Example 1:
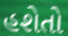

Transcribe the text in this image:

હશેતો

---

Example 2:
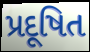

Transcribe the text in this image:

પ્રદૂષિત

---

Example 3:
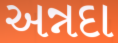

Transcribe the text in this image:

અન્નદા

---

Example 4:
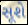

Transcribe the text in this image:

સૂશે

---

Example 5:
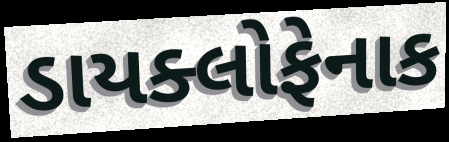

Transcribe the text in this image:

ડાયક્લોફેનાક